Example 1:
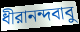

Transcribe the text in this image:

ধীরানন্দবাবু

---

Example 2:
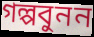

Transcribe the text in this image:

গল্পবুনন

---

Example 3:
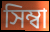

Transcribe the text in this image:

সিম্বা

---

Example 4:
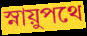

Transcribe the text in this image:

স্নায়ুপথে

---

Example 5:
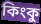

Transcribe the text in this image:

কিংকু